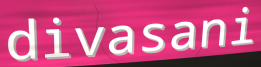
divasani